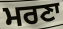
ਮਰਣਾ